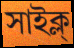
সাইক্ল্